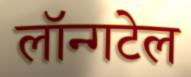
लॉन्गटेल